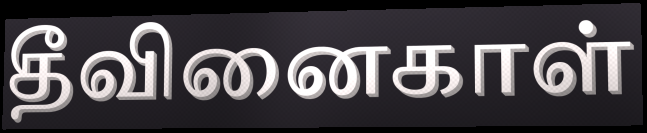
தீவினைகாள்